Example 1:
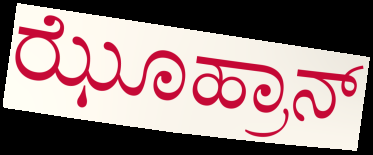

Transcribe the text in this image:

ಝೊಹ್ರಾನ್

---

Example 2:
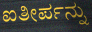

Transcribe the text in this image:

ಐತೀರ್ಪನ್ನು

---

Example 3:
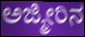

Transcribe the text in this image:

ಅಜ್ಮೀರಿನ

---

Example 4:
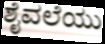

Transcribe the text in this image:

ಶೈವಲೆಯು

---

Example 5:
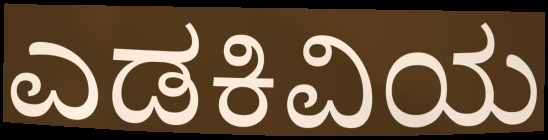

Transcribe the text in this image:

ಎಡಕಿವಿಯ